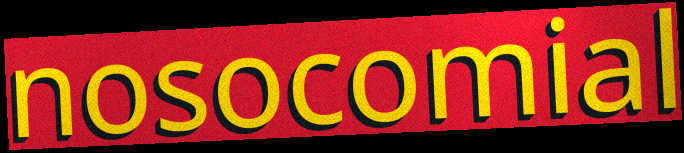
nosocomial